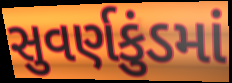
સુવર્ણકુંડમાં